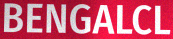
BENGALCL